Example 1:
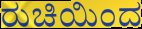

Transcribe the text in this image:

ರುಚಿಯಿಂದ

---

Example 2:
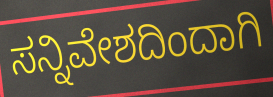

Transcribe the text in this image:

ಸನ್ನಿವೇಶದಿಂದಾಗಿ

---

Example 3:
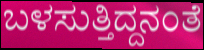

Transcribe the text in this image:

ಬಳಸುತ್ತಿದ್ದನಂತೆ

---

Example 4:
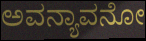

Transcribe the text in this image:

ಅವನ್ಯಾವನೋ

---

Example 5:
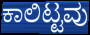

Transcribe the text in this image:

ಕಾಲಿಟ್ಟವು